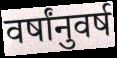
वर्षांनुवर्ष